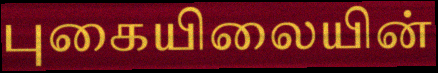
புகையிலையின்